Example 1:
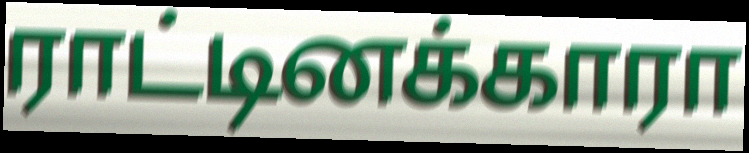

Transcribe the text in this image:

ராட்டினக்காரா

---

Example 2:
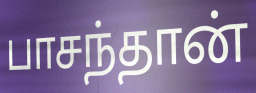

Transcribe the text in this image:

பாசந்தான்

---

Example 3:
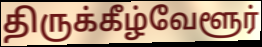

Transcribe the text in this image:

திருக்கீழ்வேளூர்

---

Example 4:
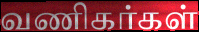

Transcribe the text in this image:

வணிகர்கள்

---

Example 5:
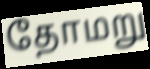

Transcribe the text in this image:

தோமறு